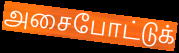
அசைபோட்டுக்